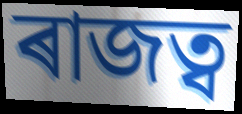
ৰাজত্ব